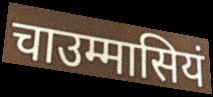
चाउम्मासियं